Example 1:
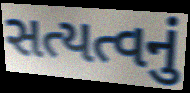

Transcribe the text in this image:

સત્યત્વનું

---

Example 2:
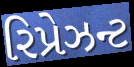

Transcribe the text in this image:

રિપ્રેઝન્ટ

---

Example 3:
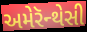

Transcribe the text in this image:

અમેરૅન્થેસી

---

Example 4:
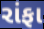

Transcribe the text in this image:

રાંફા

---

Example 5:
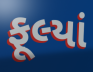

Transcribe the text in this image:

ફૂલ્યાં